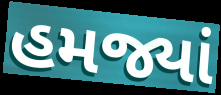
હમજ્યાં